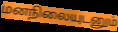
மனநிலையுடனும்